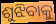
ଶୁଝିବାକୁ